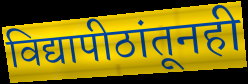
विद्यापीठांतूनही